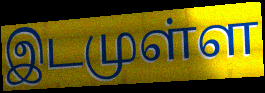
இடமுள்ள